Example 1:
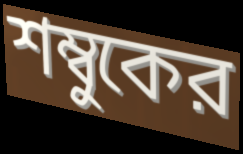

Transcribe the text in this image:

শম্বুকের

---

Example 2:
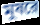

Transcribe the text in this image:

মুষরে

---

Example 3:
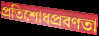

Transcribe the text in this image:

প্রতিশোধপ্রবণতা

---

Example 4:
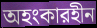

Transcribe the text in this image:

অহংকারহীন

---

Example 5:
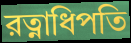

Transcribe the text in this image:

রত্নাধিপতি